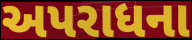
અપરાધના